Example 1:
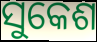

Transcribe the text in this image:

ସୁକେଶ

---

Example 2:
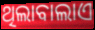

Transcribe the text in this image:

ଥିଲାବାଲାଏ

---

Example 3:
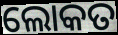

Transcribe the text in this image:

ଲୋକତ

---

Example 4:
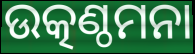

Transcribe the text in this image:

ଉତ୍କଣ୍ଠମନା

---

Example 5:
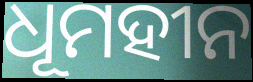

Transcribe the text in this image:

ଧୂମହୀନ